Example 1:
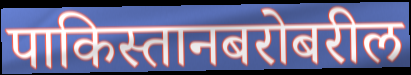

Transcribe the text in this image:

पाकिस्तानबरोबरील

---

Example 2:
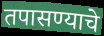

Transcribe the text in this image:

तपासण्याचे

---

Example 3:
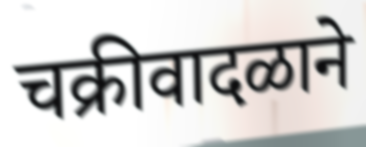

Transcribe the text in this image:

चक्रीवादळाने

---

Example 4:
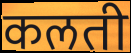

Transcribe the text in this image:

कलती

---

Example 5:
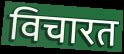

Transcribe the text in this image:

विचारत